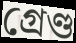
গ্ৰেণ্ড